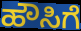
ಹೌಸಿಗೆ